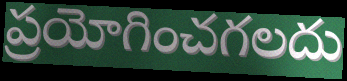
ప్రయోగించగలదు